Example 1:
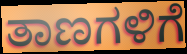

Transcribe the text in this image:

ತಾಣಗಳಿಗೆ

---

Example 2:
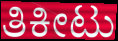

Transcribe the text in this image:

ತಿಕೀಟು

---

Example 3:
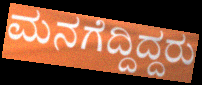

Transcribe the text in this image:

ಮನಗೆದ್ದಿದ್ದರು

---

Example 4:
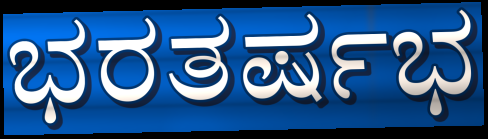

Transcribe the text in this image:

ಭರತರ್ಷಭ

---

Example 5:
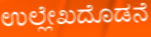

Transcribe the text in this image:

ಉಲ್ಲೇಖದೊಡನೆ